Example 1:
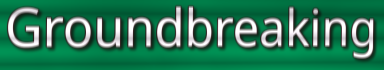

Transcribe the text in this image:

Groundbreaking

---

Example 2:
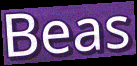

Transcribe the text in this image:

Beas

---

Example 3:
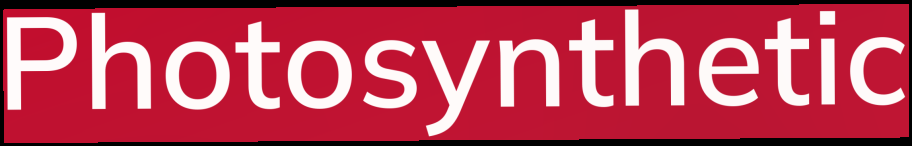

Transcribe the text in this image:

Photosynthetic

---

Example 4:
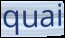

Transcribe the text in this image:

quai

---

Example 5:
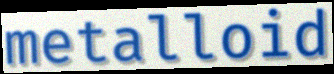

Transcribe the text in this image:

metalloid